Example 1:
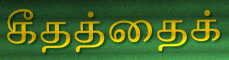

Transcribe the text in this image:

கீதத்தைக்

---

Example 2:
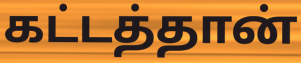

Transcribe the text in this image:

கட்டத்தான்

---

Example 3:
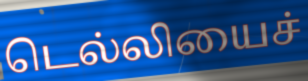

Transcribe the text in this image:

டெல்லியைச்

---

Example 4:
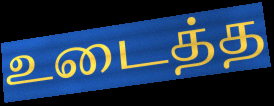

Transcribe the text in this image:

உடைத்த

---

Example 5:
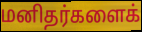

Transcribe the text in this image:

மனிதர்களைக்